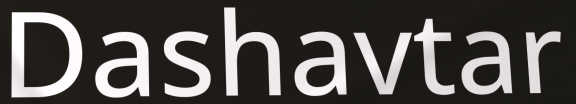
Dashavtar